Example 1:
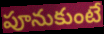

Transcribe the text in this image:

పూనుకుంటే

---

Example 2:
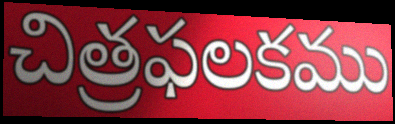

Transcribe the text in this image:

చిత్రఫలకము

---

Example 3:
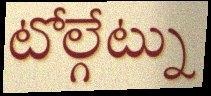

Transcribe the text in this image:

టోల్గేట్ను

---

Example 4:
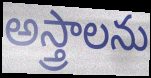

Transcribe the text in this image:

అస్త్రాలను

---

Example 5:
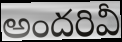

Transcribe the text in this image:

అందరివీ